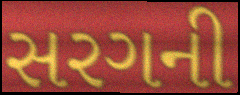
સરગની